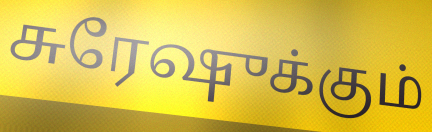
சுரேஷுக்கும்